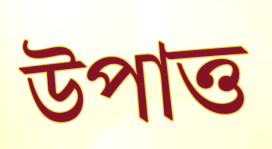
উপাত্ত